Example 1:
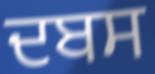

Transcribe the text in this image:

ਦਬਸ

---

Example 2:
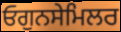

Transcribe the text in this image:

ਓਗੁਨਸੇਮਿਲਰ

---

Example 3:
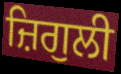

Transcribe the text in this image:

ਜ਼ਿਗੁਲੀ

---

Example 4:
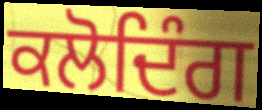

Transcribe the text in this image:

ਕਲੋਦਿੰਗ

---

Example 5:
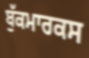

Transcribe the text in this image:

ਬੁੱਕਮਾਰਕਸ